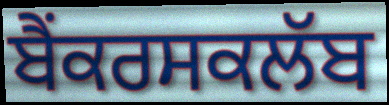
ਬੈਂਕਰਸਕਲੱਬ